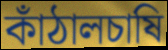
কাঁঠালচাষি